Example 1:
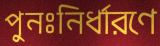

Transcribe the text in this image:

পুনঃনির্ধারণে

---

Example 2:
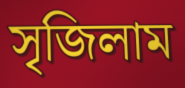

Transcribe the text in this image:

সৃজিলাম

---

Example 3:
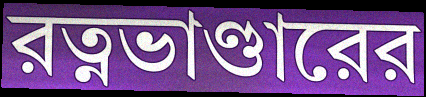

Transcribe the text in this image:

রত্নভাণ্ডারের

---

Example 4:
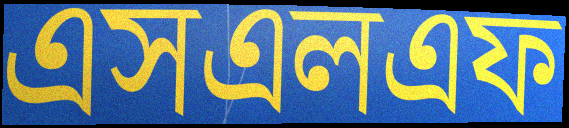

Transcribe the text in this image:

এসএলএফ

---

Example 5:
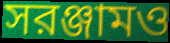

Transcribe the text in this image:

সরঞ্জামও